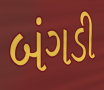
બંગડી